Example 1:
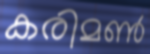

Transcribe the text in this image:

കരിമൺ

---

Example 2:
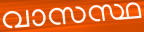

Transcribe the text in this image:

വാസസ്ഥ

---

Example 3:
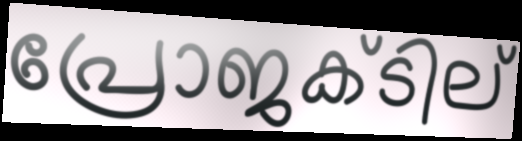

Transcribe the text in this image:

പ്രോജക്ടില്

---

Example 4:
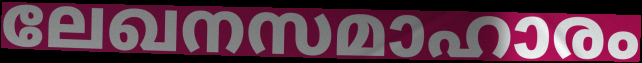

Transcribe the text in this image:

ലേഖനസമാഹാരം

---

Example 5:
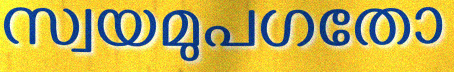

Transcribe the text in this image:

സ്വയമുപഗതോ